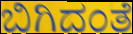
ಬಿಗಿದಂತೆ